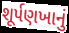
શૂર્પણખાનું